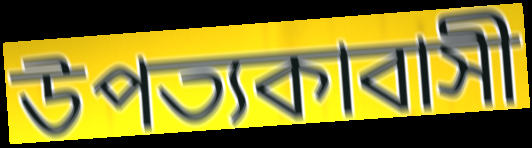
উপত্যকাবাসী